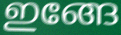
ഇങ്ങേ